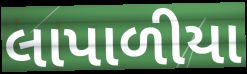
લાપાળીયા